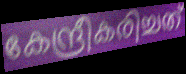
കേന്ദ്രീകരിച്ചത്